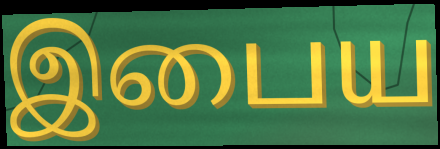
இபைய